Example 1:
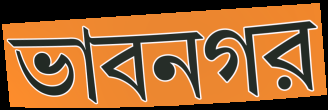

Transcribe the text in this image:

ভাবনগর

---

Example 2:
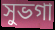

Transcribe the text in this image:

সুভগা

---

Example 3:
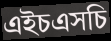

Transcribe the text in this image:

এইচএসচি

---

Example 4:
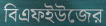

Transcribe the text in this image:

বিএফইউজের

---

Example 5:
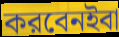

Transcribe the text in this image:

করবেনইবা